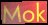
Mok